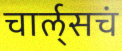
चार्ल्सचं